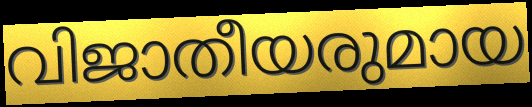
വിജാതീയരുമായ